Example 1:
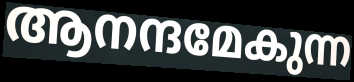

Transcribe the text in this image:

ആനന്ദമേകുന്ന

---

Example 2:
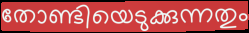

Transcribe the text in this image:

തോണ്ടിയെടുക്കുന്നതും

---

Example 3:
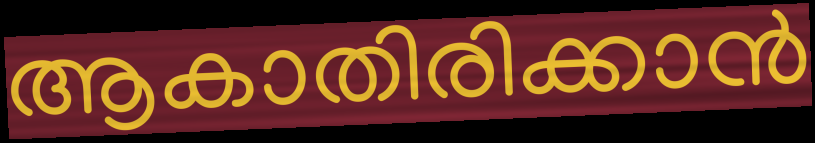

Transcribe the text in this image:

ആകാതിരിക്കാൻ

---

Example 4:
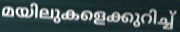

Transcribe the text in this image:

മയിലുകളെക്കുറിച്ച്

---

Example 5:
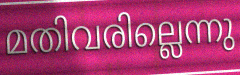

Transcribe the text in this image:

മതിവരില്ലെന്നു